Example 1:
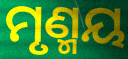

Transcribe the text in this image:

ମୃଣ୍ମୟ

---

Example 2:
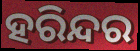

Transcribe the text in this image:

ହରିନ୍ଦର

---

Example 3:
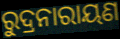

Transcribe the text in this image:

ରୁଦ୍ରନାରାୟଣ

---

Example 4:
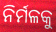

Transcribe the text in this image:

ନିର୍ମଳକୁ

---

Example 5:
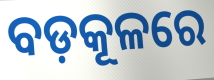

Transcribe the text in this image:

ବଡ଼କୂଳରେ